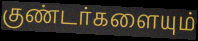
குண்டர்களையும்